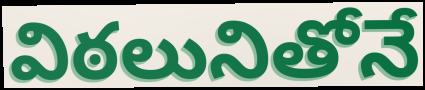
విఠలునితోనే